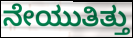
ನೇಯುತಿತ್ತು